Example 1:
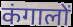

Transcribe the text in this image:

कंगालों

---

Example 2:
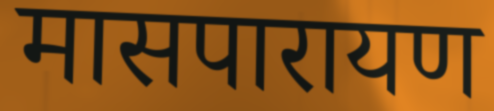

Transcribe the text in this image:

मासपारायण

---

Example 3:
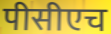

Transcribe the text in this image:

पीसीएच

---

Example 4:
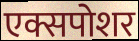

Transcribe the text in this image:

एक्सपोशर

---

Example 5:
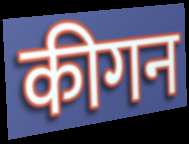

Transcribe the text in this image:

कीगन